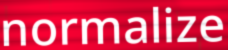
normalize